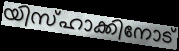
യിസ്ഹാക്കിനോട്